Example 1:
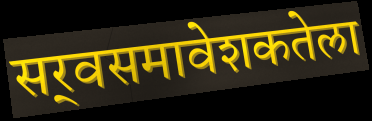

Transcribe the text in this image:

सर्वसमावेशकतेला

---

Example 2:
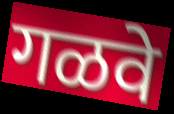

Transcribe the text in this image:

गळवे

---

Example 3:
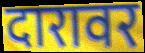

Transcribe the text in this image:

दारावर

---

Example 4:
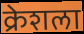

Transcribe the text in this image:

क्रेशला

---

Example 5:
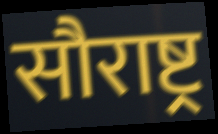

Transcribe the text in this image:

सौराष्ट्र